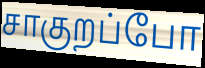
சாகுறப்போ